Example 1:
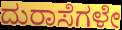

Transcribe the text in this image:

ದುರಾಸೆಗಳೇ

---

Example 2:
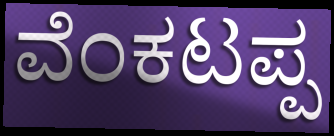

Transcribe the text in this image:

ವೆಂಕಟಪ್ಪ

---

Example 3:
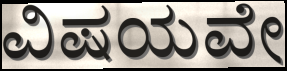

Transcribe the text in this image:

ವಿಷಯವೇ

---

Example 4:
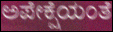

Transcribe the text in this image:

ಅಪೇಕ್ಷೆಯಂತೆ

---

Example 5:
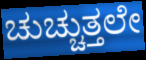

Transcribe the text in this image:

ಚುಚ್ಚುತ್ತಲೇ